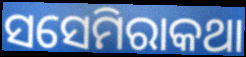
ସସେମିରାକଥା